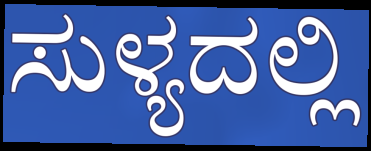
ಸುಳ್ಯದಲ್ಲಿ